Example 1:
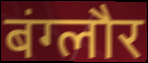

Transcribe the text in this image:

बंग्लौर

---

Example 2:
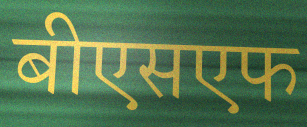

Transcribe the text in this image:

बीएसएफ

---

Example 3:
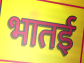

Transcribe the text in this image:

भातई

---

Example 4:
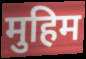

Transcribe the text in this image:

मुहिम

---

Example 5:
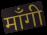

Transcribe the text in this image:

माँगी